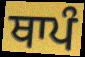
ਥਾਪੰ